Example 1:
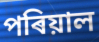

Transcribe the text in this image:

পৰিয়াল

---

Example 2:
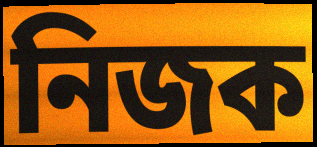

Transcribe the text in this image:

নিজক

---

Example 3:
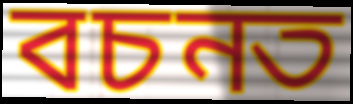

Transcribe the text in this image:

বচনত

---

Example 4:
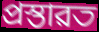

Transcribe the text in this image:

প্ৰস্তাৱত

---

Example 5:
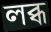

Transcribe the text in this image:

লব্ধ